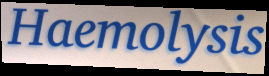
Haemolysis